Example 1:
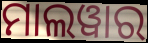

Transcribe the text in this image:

ମାଲୱାର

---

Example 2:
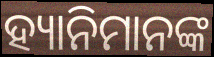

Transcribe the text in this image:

ହ୍ୟାନିମାନଙ୍କ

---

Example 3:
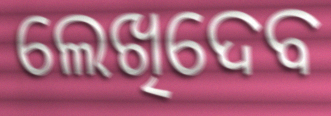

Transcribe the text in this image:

ଲେଖିଦେବ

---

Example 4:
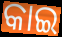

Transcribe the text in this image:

କାଇ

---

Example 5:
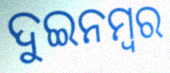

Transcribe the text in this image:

ଦୁଇନମ୍ୱର